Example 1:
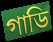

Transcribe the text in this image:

গাডি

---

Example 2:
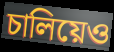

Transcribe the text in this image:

চালিয়েও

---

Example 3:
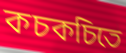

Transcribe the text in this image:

কচকচিতে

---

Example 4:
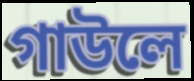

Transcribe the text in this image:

গাউলে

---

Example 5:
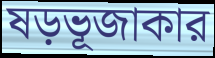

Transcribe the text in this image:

ষড়ভূজাকার